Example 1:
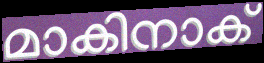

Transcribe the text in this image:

മാകിനാക്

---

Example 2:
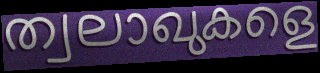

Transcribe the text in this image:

ത്വലാഖുകളെ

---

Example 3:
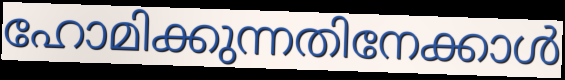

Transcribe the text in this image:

ഹോമിക്കുന്നതിനേക്കാൾ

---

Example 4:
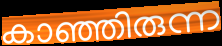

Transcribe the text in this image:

കാഞ്ഞിരുന്ന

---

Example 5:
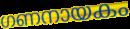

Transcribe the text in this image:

ഗണനായകം